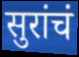
सुरांचं